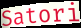
Satori